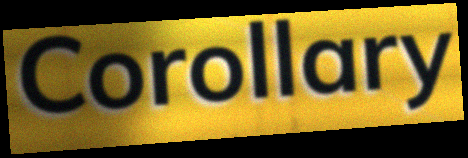
Corollary